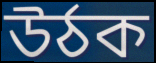
উঠক